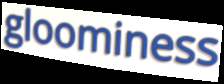
gloominess